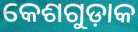
କେଶଗୁଡ଼ାକ